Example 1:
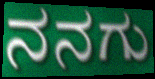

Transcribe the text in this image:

ನನಗು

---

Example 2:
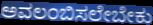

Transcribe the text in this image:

ಅವಲಂಬಿಸಲೇಬೇಕು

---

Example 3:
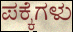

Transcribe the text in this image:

ಪಕ್ಕೆಗಳು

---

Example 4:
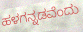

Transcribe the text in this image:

ಹಳಗನ್ನಡವೆಂದು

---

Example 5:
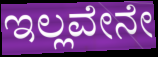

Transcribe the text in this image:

ಇಲ್ಲವೇನೇ